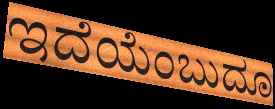
ಇದೆಯೆಂಬುದೂ